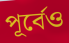
পূর্বেও